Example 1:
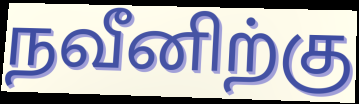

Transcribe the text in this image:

நவீனிற்கு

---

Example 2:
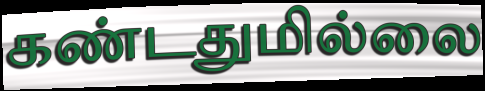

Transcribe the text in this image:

கண்டதுமில்லை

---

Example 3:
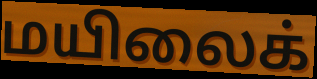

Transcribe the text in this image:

மயிலைக்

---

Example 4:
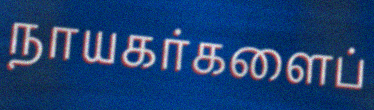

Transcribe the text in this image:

நாயகர்களைப்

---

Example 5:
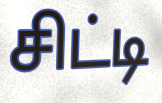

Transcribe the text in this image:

சிட்டி